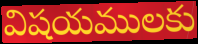
విషయములకు